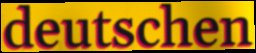
deutschen